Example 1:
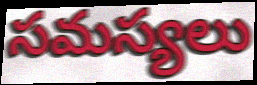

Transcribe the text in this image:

సమస్యలు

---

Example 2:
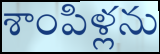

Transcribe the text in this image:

శాంపిళ్లను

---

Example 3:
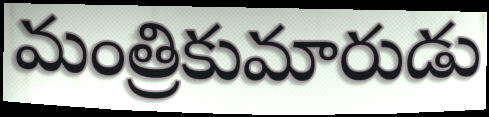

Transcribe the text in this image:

మంత్రికుమారుడు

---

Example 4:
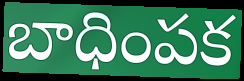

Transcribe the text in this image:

బాధింపక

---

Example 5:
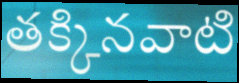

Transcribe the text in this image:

తక్కినవాటి